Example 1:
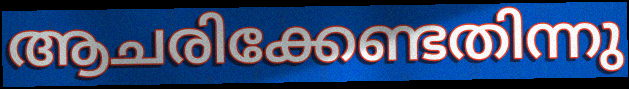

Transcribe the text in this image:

ആചരിക്കേണ്ടതിന്നു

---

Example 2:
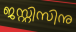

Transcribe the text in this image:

ജസ്റ്റിസിനു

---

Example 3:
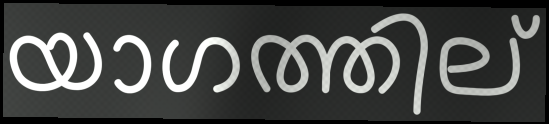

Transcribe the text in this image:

യാഗത്തില്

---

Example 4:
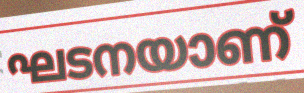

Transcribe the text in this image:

ഘടനയാണ്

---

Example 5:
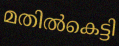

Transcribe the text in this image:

മതിൽകെട്ടി